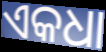
ଏକଧା